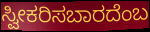
ಸ್ವೀಕರಿಸಬಾರದೆಂಬ